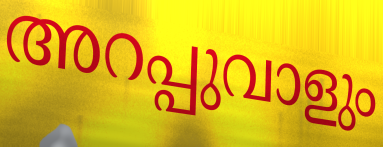
അറപ്പുവാളും